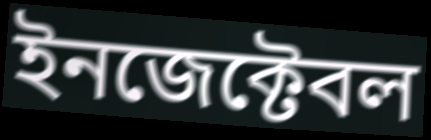
ইনজেক্টেবল